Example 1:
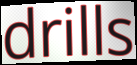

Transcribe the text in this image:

drills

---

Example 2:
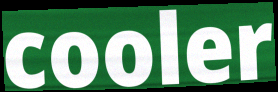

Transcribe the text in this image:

cooler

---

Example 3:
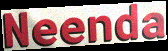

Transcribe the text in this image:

Neenda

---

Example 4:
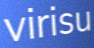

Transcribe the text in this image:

virisu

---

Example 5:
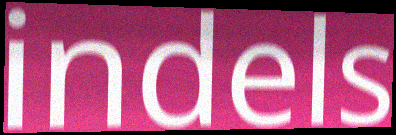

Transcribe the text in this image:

indels